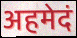
अहमेदं